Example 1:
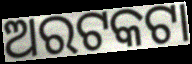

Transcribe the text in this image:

ଅରଟକଟା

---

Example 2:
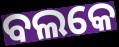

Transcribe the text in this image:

ବଲକେ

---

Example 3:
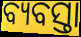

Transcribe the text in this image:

ବ୍ୟବସ୍ତା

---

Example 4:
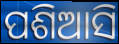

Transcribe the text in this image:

ପଶିଆସି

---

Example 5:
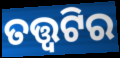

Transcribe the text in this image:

ତତ୍ତ୍ଵଟିର